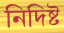
নিদিষ্ট